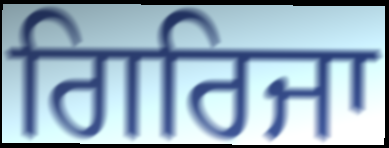
ਗਿਰਿਜਾ